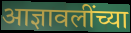
आज्ञावलींच्या